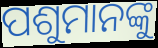
ପଶୁମାନଙ୍କୁ